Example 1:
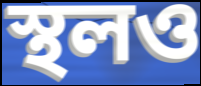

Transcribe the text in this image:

স্থলও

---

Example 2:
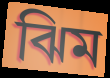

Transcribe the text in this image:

ঝিম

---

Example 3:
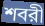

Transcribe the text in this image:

শবরী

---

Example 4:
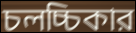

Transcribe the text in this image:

চলচ্চিকার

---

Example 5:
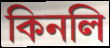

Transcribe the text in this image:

কিনলি